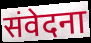
संवेदना